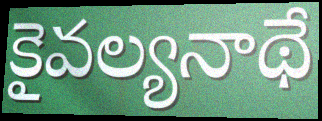
కైవల్యనాథే